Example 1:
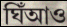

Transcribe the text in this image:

ঘিঁআও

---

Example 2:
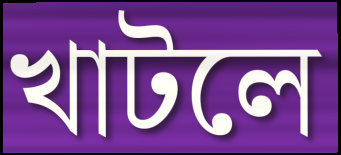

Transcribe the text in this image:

খাটলে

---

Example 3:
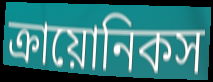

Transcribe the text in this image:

ক্রায়োনিকস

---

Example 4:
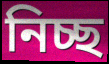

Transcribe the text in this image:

নিচ্ছ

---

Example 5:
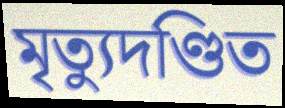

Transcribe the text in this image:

মৃত্যুদণ্ডিত